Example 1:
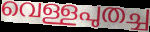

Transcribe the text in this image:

വെള്ളപുതച്ച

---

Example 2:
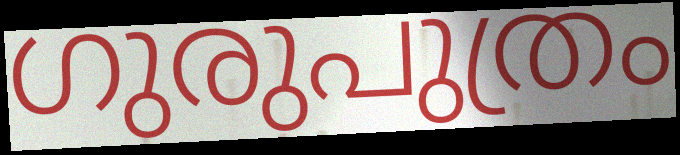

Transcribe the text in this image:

ഗുരുപുത്രം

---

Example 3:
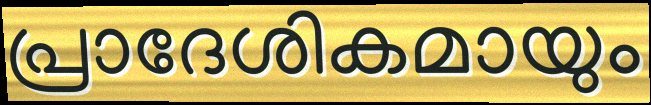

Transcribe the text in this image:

പ്രാദേശികമായും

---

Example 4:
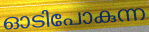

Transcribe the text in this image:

ഓടിപോകുന്ന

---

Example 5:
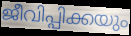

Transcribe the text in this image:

ജീവിപ്പിക്കയും